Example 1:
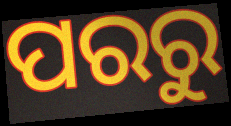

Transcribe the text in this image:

ପରରୁ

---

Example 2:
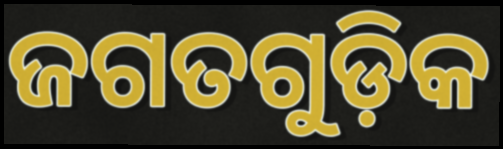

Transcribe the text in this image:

ଜଗତଗୁଡ଼ିକ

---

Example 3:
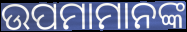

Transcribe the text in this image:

ଉପମାମାନଙ୍କ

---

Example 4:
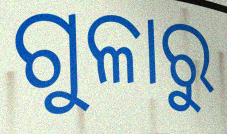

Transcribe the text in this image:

ଗୁଳାରୁ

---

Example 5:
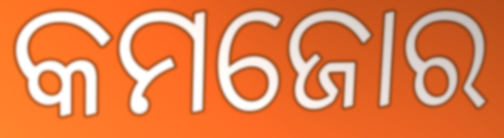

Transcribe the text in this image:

କମଜୋର